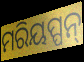
ମରିୟପ୍ପନ୍